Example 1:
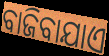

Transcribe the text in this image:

ବାଜିବାଯାଏ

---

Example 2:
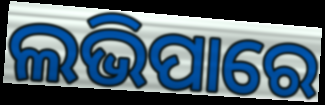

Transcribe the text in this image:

ଲଭିପାରେ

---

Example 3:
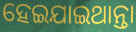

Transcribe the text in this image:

ହେଇଯାଇଥାନ୍ତା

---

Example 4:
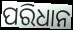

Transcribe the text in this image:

ପରିଧାନ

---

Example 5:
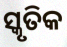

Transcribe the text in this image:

ସ୍କୃତିକ